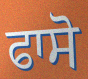
ਫਾਸੋ